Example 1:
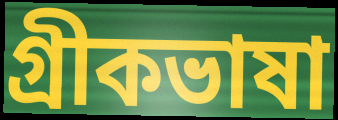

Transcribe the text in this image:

গ্রীকভাষা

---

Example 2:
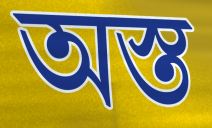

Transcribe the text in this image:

অস্ত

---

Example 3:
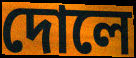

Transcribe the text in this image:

দোলে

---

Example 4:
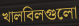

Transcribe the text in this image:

খালবিলগুলো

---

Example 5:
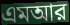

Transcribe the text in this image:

এমআর